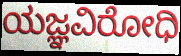
ಯಜ್ಞವಿರೋಧಿ